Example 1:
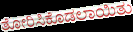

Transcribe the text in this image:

ತೋರಿಸಿಕೊಡಲಾಯಿತು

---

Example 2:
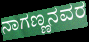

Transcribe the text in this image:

ನಾಗಣ್ಣನವರ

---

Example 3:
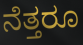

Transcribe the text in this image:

ನೆತ್ತರೂ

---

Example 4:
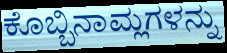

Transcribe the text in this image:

ಕೊಬ್ಬಿನಾಮ್ಲಗಳನ್ನು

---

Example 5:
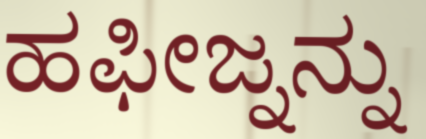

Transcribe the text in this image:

ಹಫೀಜ್ನನ್ನು